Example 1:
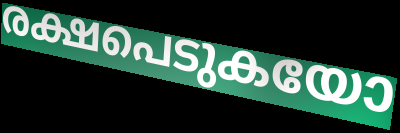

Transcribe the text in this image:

രക്ഷപെടുകയോ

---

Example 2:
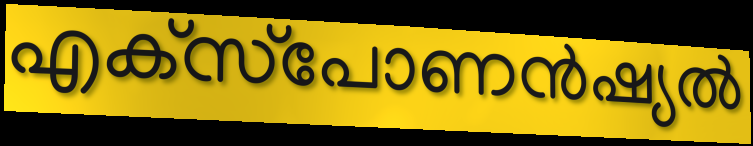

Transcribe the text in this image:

എക്‌സ്‌പോണൻഷ്യൽ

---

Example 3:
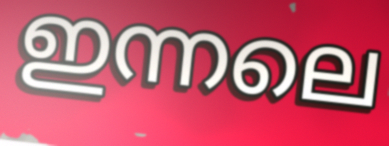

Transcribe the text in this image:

ഇന്നലെ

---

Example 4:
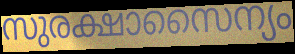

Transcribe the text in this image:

സുരക്ഷാസൈന്യം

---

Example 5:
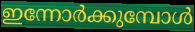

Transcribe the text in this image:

ഇന്നോർക്കുമ്പോൾ